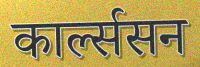
कार्ल्ससन